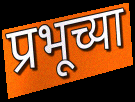
प्रभूच्या